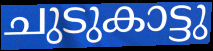
ചുടുകാട്ടു